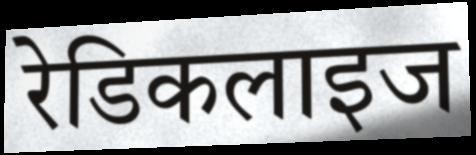
रेडिकलाइज